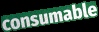
consumable